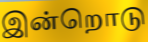
இன்றொடு